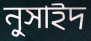
নুসাইদ